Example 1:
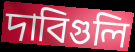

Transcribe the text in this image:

দাবিগুলি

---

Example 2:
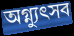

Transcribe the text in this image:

অগ্ন্যুৎসব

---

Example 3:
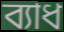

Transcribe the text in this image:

ব্যাধ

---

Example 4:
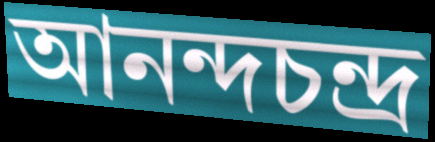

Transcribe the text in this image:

আনন্দচন্দ্র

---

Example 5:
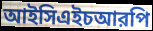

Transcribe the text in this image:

আইসিএইচআরপি